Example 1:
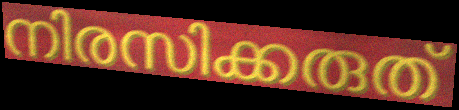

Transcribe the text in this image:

നിരസിക്കരുത്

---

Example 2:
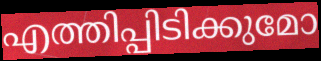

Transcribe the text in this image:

എത്തിപ്പിടിക്കുമോ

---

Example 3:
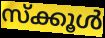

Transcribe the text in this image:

സ്ക്കൂൾ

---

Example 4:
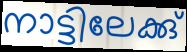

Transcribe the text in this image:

നാട്ടിലേക്കു്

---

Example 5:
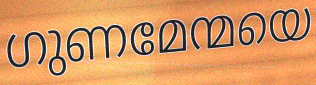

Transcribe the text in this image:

ഗുണമേന്മയെ